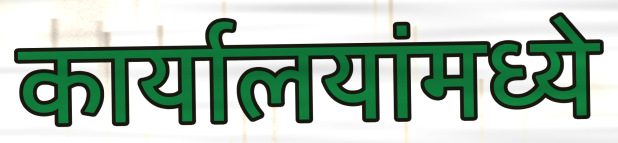
कार्यालयांमध्ये